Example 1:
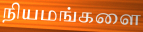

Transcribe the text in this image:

நியமங்களை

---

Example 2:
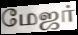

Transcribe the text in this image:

மேஜர்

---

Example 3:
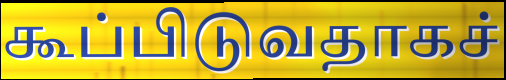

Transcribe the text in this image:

கூப்பிடுவதாகச்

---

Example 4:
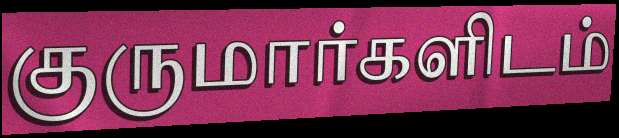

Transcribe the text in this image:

குருமார்களிடம்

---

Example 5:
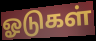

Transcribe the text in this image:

ஓடுகள்